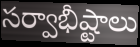
సర్వాభీష్టాలు